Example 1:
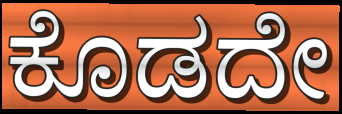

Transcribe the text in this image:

ಕೊಡದೇ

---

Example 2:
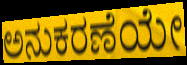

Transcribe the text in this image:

ಅನುಕರಣೆಯೇ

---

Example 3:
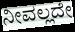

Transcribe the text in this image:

ನೀವಲ್ಲದೇ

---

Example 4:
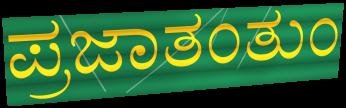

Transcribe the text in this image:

ಪ್ರಜಾತಂತುಂ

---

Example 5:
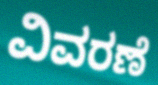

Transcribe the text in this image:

ವಿವರಣೆ